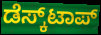
ಡೆಸ್ಕ್‌ಟಾಪ್